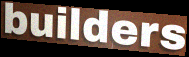
builders